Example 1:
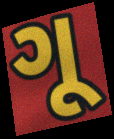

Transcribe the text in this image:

ગૂ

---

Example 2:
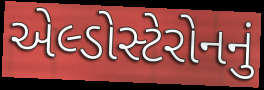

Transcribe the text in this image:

એલ્ડોસ્ટેરોનનું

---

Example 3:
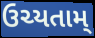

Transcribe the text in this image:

ઉચ્યતામ્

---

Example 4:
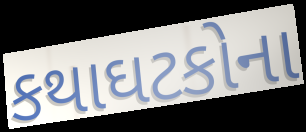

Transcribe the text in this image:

કથાઘટકોના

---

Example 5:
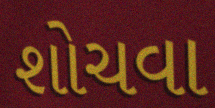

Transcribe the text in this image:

શોચવા